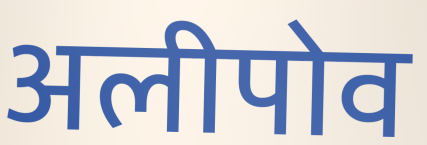
अलीपोव